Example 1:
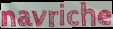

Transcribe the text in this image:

navriche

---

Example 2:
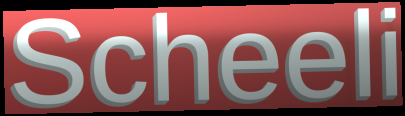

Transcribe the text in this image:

Scheeli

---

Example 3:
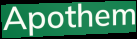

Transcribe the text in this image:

Apothem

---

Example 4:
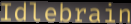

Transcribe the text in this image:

Idlebrain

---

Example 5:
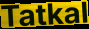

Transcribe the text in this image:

Tatkal